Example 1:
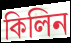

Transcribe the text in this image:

কিলিন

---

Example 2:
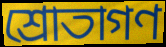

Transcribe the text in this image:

শ্রোতাগণ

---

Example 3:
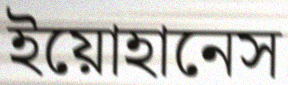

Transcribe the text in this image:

ইয়োহানেস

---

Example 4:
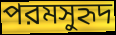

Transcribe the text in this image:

পরমসুহৃদ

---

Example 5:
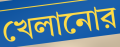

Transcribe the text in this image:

খেলানোর